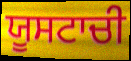
ਯੂਸਟਾਚੀ